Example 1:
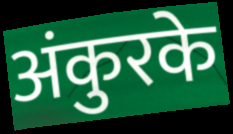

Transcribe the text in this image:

अंकुरके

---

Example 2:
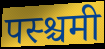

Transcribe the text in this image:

पस्श्चमी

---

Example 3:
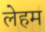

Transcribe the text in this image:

लेहम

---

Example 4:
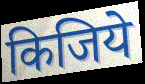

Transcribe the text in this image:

किजिये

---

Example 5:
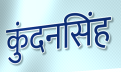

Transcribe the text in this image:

कुंदनसिंह